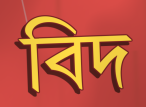
বিদ